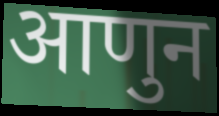
आणुन